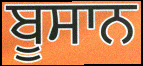
ਬੂਸਾਨ